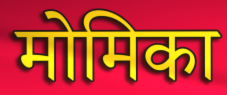
मोमिका